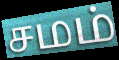
சமம்